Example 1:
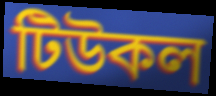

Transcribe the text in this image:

টিউকল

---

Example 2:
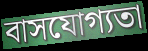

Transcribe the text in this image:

বাসযোগ্যতা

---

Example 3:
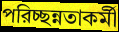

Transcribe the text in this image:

পরিচ্ছন্নতাকর্মী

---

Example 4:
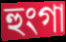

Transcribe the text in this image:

হুংগা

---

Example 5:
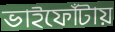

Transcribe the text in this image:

ভাইফোঁটায়